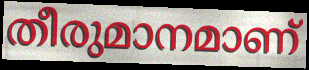
തീരുമാനമാണ്